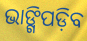
ଭାଙ୍ଗିପଡ଼ିବ